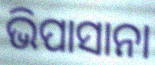
ଭିପାସାନା